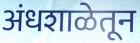
अंधशाळेतून